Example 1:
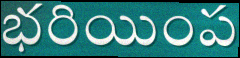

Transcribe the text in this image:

భరియింప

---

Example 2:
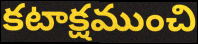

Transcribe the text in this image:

కటాక్షముంచి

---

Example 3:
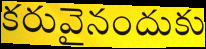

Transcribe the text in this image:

కరువైనందుకు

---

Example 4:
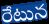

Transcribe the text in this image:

రేటున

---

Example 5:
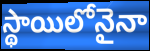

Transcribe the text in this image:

స్థాయిలోనైనా